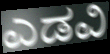
ಎಡವಿ